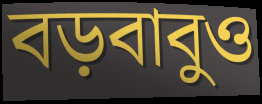
বড়বাবুও